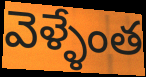
వెళ్ళేంత